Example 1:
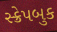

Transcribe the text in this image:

સ્ક્રેપબુક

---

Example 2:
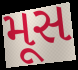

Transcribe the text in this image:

મૂસ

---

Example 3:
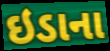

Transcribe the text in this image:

ઇડાના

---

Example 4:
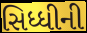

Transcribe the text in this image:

સિધ્ધીની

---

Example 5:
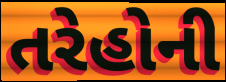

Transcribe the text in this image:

તરેહોની